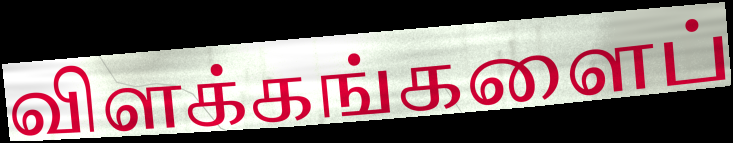
விளக்கங்களைப்